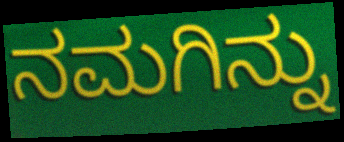
ನಮಗಿನ್ನು